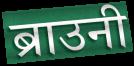
ब्राउनी